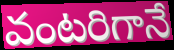
వంటరిగానే